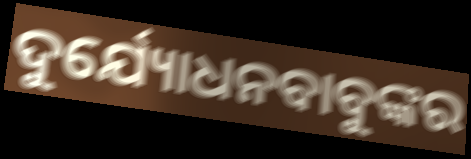
ଦୁର୍ଯ୍ୟୋଧନବାବୁଙ୍କର